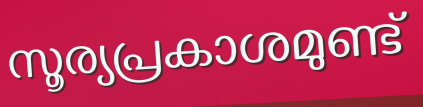
സൂര്യപ്രകാശമുണ്ട്